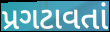
પ્રગટાવતાં